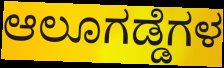
ಆಲೂಗಡ್ಡೆಗಳ